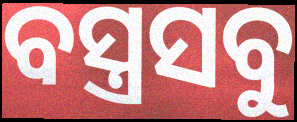
ବସ୍ତ୍ରସବୁ